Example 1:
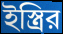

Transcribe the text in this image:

ইস্ত্রির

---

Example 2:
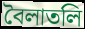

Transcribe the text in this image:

বৈলাতলি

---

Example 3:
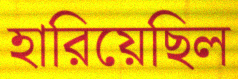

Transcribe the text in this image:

হারিয়েছিল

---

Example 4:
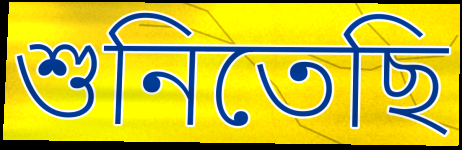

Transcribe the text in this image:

শুনিতেছি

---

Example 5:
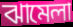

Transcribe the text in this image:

ঝামেলা